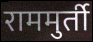
राममुर्ती